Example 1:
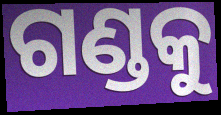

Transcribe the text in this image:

ଗଣ୍ଡକୁ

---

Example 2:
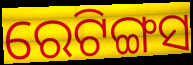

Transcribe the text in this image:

ରେଟିଙ୍ଗସ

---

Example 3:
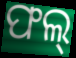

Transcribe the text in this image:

ଫଲ୍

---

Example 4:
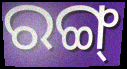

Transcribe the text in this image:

ରଙ୍ଗ୍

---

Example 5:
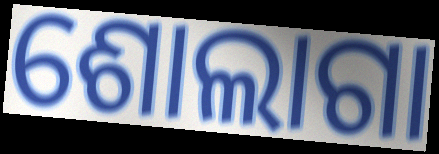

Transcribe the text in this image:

ଶୋଲାଗା